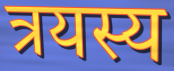
त्रयस्य